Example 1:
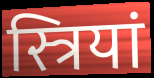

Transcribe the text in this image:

स्त्रियां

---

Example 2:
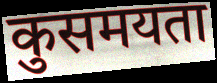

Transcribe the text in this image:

कुसमयता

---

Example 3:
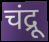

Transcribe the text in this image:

चंद्रू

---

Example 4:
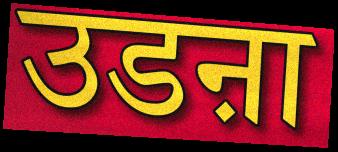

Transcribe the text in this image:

उडऩा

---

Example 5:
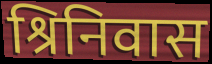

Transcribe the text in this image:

श्रिनिवास